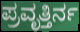
ಪ್ರವೃತ್ತಿರ್ನ